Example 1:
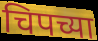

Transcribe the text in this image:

चिपच्या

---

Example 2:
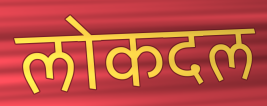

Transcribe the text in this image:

लोकदल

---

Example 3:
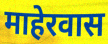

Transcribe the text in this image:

माहेरवास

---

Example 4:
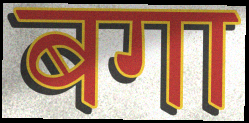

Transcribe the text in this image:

बगा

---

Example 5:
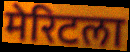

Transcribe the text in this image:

मेरिटला